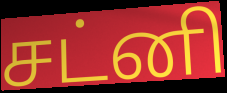
சட்னி